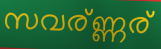
സവര്ണ്ണര്